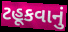
ટહૂકવાનું